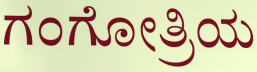
ಗಂಗೋತ್ರಿಯ